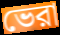
ভেরা